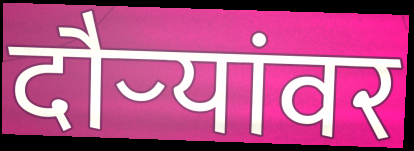
दौऱ्यांवर